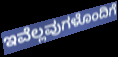
ಇವೆಲ್ಲವುಗಳೊಂದಿಗೆ